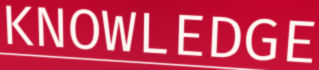
KNOWLEDGE